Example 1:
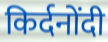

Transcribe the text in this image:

किर्दनोंदी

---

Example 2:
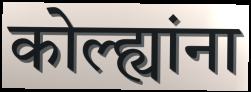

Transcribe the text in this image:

कोल्ह्यांना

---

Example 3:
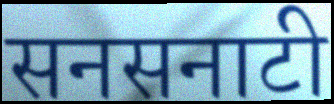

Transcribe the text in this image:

सनसनाटी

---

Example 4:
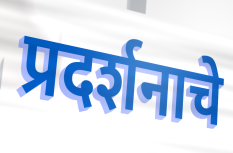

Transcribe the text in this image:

प्रदर्शनाचे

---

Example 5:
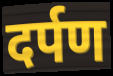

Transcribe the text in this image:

दर्पण